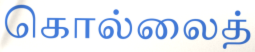
கொல்லைத்